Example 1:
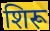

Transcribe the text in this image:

शिरू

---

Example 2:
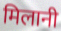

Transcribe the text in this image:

मिलानी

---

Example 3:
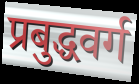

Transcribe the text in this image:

प्रबुद्धवर्ग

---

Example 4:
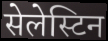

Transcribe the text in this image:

सेलेस्टिन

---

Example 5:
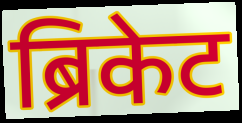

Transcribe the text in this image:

ब्रिकेट